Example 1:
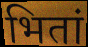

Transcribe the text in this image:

भितां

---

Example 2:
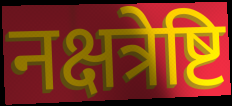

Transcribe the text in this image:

नक्षत्रेष्टि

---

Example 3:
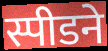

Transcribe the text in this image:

स्पीडने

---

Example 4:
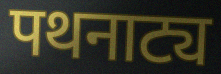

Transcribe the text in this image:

पथनाट्य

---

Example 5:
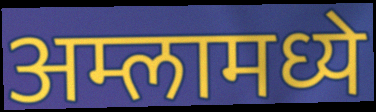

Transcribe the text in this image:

अम्लामध्ये